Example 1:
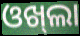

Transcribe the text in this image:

ଓଖ୍‌ଲା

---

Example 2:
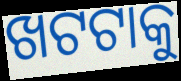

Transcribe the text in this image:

ଖଟଟାକୁ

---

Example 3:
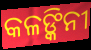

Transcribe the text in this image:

କଳଙ୍କିନୀ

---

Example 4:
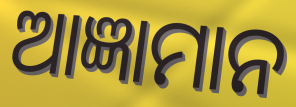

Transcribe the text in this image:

ଆଜ୍ଞାମାନ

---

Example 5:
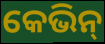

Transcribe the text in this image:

କେଭିନ୍